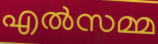
എൽസമ്മ